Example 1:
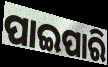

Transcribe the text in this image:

ପାଇପାରି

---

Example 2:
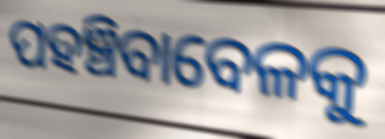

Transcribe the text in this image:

ପହଞ୍ଚିବାବେଳକୁ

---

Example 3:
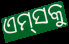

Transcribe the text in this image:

ଏମ୍‌ସକୁ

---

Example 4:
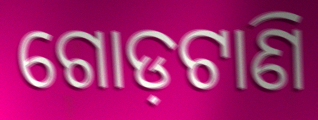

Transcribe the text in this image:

ଗୋଡ଼ଟାଣି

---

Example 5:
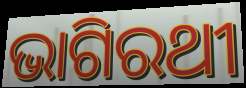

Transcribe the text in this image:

ଭାଗିରଥୀ